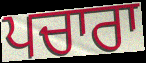
ਪਚਾਰਾ